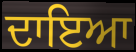
ਦਾਇਆ